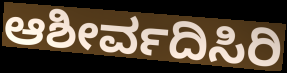
ಆಶೀರ್ವದಿಸಿರಿ